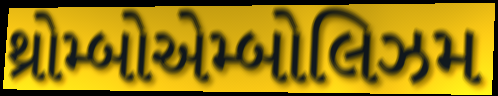
થ્રોમ્બોએમ્બોલિઝમ